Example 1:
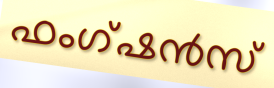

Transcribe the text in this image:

ഫംഗ്ഷൻസ്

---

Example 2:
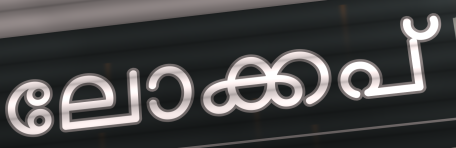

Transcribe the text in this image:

ലോക്കപ്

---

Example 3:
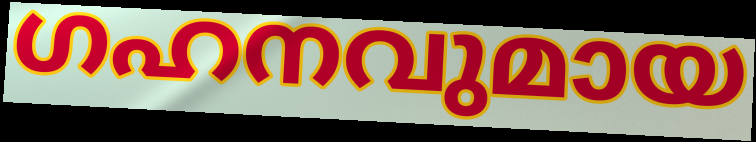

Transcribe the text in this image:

ഗഹനവുമായ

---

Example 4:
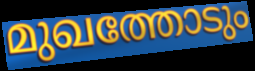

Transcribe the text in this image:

മുഖത്തോടും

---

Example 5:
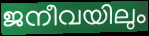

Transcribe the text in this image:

ജനീവയിലും